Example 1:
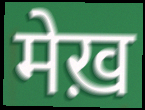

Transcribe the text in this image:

मेख़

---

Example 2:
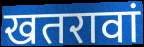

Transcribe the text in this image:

खतरावां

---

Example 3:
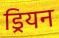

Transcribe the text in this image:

ड्रियन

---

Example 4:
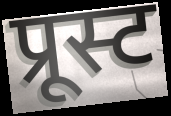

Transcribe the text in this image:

प्रूस्ट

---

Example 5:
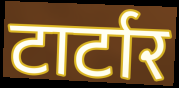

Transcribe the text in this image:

टार्टार